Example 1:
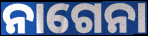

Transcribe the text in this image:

ନାଗେନା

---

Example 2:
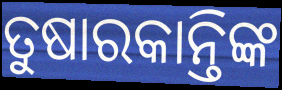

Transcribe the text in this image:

ତୁଷାରକାନ୍ତିଙ୍କ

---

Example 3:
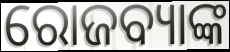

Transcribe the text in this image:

ରୋଜବ୍ୟାଙ୍କ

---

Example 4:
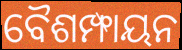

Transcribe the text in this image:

ବୈଶମ୍ଫାୟନ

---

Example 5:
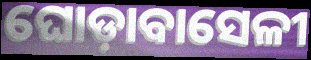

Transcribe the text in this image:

ଘୋଡ଼ାବାସେଳୀ